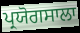
ਪ੍ਰਯੋਗਸਾਲਾ